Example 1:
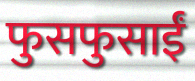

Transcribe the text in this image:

फुसफुसाईं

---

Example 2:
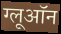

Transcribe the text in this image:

ग्लूऑन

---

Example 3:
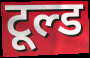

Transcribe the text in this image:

टूल्ड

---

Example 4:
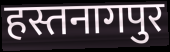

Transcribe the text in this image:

हस्तनागपुर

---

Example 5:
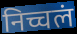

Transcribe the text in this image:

निच्चलं